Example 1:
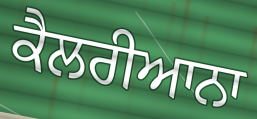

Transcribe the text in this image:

ਕੈਲਰੀਆਨਾ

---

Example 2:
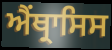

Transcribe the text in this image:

ਐਂਥ੍ਰਾਸਿਸ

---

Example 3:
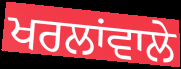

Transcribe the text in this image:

ਖਰਲਾਂਵਾਲੇ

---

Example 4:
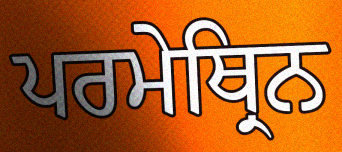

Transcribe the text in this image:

ਪਰਮੇਥ੍ਰਿਨ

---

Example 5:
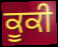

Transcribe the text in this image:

ਕੂਕੀ